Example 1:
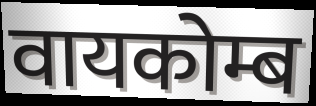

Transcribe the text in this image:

वायकोम्ब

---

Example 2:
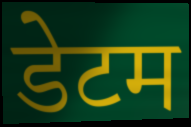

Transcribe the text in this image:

डेटम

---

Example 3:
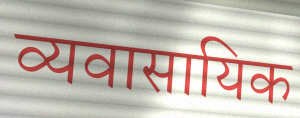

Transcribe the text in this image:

व्यवासायिक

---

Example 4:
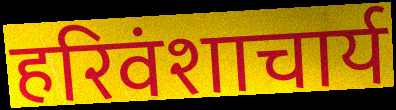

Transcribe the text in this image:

हरिवंशाचार्य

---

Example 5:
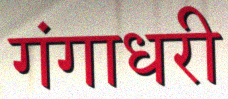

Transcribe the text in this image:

गंगाधरी